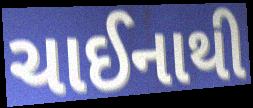
ચાઈનાથી